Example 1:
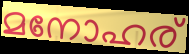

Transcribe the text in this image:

മനോഹര്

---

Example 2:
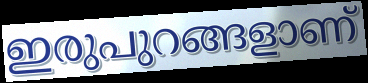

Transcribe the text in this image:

ഇരുപുറങ്ങളാണ്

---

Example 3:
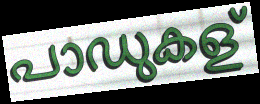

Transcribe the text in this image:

പാഡുകള്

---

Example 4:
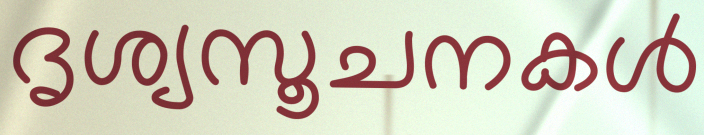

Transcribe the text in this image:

ദൃശ്യസൂചനകൾ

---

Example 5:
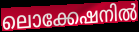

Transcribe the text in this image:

ലൊക്കേഷനിൽ